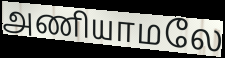
அணியாமலே